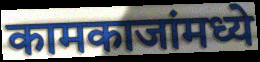
कामकाजांमध्ये